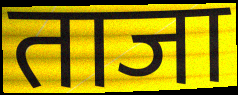
ताजा